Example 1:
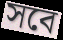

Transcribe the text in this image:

সবে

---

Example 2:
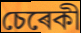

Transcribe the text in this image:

চেৰেকী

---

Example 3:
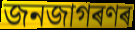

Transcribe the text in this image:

জনজাগৰণৰ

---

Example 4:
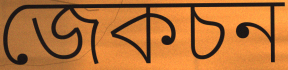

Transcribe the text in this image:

জেকচন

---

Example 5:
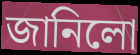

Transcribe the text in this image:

জানিলো